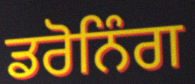
ਡਰੋਨਿੰਗ